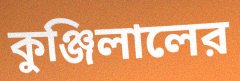
কুঞ্জিলালের